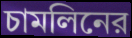
চামলিনের